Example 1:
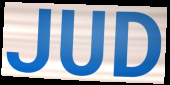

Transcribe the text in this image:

JUD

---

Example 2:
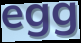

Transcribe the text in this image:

egg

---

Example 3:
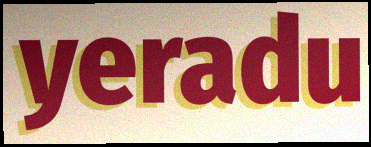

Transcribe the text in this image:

yeradu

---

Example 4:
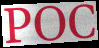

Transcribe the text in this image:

POC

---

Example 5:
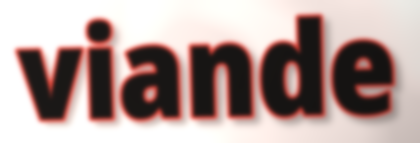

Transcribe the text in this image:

viande